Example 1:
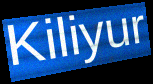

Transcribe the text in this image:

Kiliyur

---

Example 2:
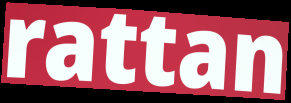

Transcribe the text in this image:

rattan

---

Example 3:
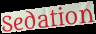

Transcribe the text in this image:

Sedation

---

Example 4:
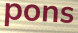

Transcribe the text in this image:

pons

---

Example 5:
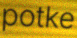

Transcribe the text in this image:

potke